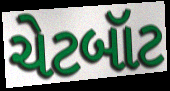
ચેટબૉટ